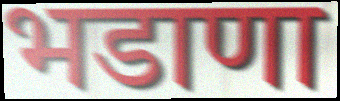
भडाणा